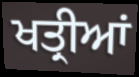
ਖਤ੍ਰੀਆਂ